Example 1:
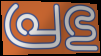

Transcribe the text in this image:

പ്രഭു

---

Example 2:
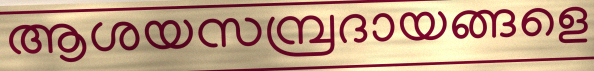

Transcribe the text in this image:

ആശയസമ്പ്രദായങ്ങളെ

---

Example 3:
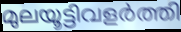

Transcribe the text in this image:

മുലയൂട്ടിവളർത്തി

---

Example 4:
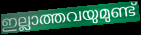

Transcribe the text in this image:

ഇല്ലാത്തവയുമുണ്ട്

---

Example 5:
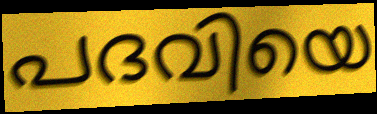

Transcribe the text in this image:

പദവിയെ